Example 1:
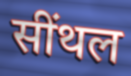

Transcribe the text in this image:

सींथल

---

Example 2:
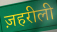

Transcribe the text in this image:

ज़हरीली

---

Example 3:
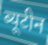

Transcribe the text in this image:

ब्यूटीन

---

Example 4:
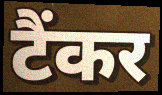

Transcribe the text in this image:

टैंकर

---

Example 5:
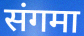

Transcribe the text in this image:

संगमा